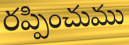
రప్పించుము